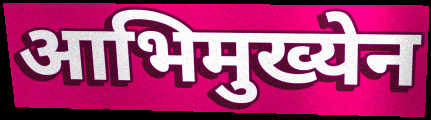
आभिमुख्येन